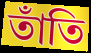
তাঁতি